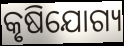
କୃଷିଯୋଗ୍ୟ